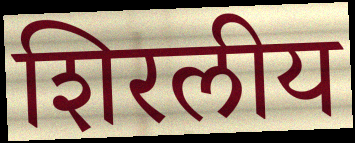
शिरलीय